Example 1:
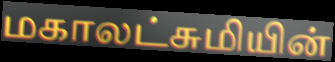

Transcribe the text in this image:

மகாலட்சுமியின்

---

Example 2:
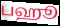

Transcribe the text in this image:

பஹூ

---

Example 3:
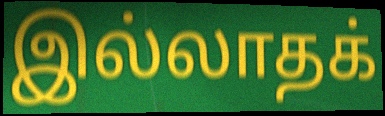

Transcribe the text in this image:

இல்லாதக்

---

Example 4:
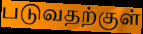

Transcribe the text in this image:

படுவதற்குள்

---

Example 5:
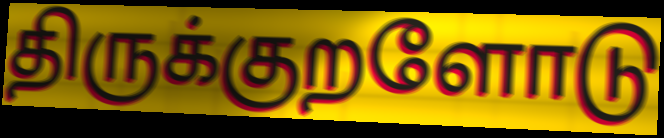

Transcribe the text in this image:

திருக்குறளோடு